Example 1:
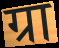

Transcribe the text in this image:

ग्रा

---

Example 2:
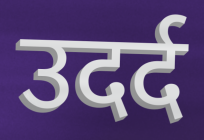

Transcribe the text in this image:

उदर्द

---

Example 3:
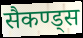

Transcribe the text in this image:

सैकण्ड्स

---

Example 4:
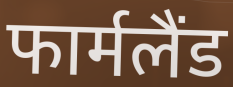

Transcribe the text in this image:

फार्मलैंड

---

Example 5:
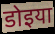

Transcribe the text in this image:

डोइया